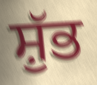
ਸ਼ੁੱਭ